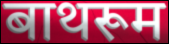
बाथरूम